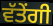
ਵੱਤੇਂਗੀ